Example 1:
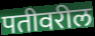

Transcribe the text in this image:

पतीवरील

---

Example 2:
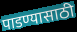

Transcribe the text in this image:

पाडण्यासाठी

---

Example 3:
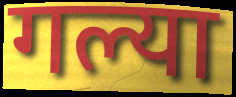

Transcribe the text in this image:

गल्या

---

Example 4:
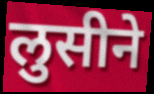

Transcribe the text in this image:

लुसीने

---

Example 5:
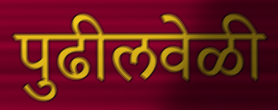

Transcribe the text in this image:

पुढीलवेळी